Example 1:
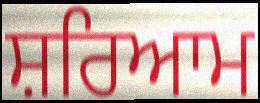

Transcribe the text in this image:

ਸ਼ਰਿਆਮ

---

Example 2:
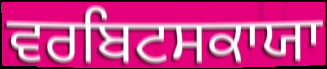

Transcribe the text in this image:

ਵਰਬਿਟਸਕਾਯਾ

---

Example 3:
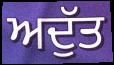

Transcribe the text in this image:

ਅਦੁੱਤ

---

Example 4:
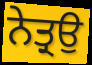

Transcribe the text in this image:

ਨੇਤ੍ਰਉ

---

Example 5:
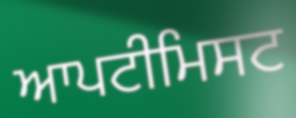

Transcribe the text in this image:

ਆਪਟੀਮਿਸਟ